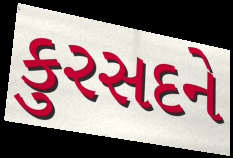
કુરસદને